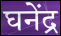
घनेंद्र